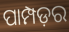
ପାମ୍ପଡ଼ର